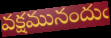
వక్షమునందుఁ